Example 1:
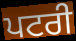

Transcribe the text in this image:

ਪਟਰੀ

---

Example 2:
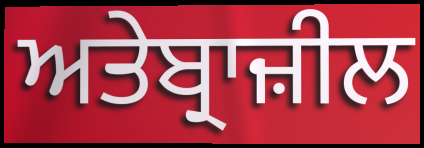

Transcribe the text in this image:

ਅਤੇਬ੍ਰਾਜ਼ੀਲ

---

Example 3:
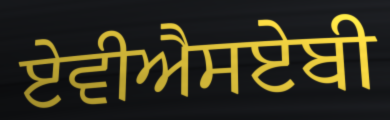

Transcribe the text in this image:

ਏਵੀਐਸਏਬੀ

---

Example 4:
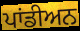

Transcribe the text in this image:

ਪਾਂਡੀਅਨ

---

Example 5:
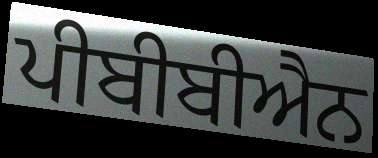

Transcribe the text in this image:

ਪੀਬੀਬੀਐਨ